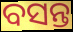
ବସନ୍ତ